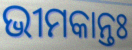
ଭୀମକାନ୍ତଃ